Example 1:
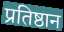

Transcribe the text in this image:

प्रतिष्ठान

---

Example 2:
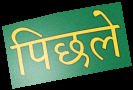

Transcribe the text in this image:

पिछले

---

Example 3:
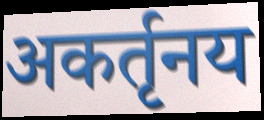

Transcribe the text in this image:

अकर्तृनय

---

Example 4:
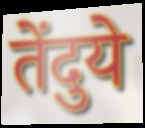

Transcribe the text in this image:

तेंदुये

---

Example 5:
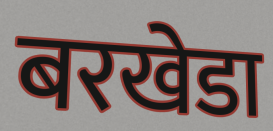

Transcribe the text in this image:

बरखेडा